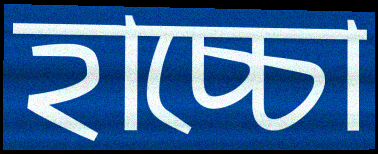
হাচ্চো